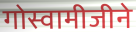
गोस्वामीजीने